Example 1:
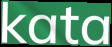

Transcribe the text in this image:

kata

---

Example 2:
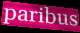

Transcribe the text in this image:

paribus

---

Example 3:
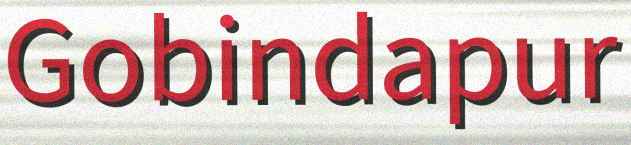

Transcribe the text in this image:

Gobindapur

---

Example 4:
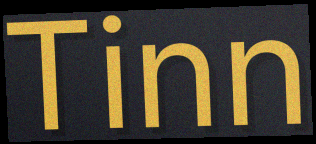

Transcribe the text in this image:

Tinn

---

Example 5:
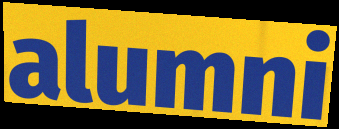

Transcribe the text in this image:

alumni